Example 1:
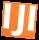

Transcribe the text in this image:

IJI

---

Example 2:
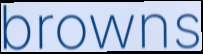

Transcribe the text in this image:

browns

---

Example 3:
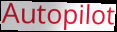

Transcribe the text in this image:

Autopilot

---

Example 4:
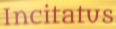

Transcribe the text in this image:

Incitatus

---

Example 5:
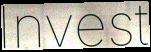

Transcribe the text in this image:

Invest